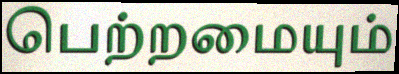
பெற்றமையும்